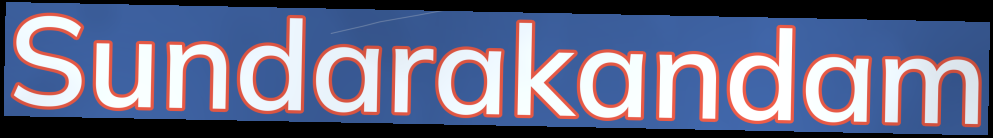
Sundarakandam